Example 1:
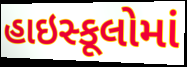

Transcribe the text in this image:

હાઇસ્કૂલોમાં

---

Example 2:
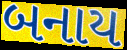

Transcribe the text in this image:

બનાય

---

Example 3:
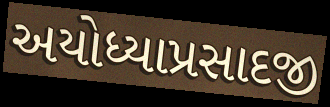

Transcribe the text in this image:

અયોધ્યાપ્રસાદજી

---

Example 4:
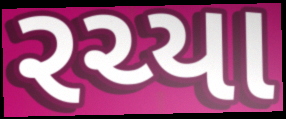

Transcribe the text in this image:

રચ્યા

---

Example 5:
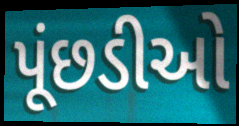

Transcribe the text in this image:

પૂંછડીઓ